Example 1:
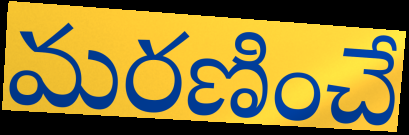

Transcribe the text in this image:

మరణించే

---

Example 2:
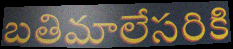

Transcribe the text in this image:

బతిమాలేసరికి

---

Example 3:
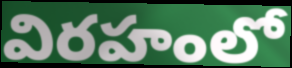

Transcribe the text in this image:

విరహంలో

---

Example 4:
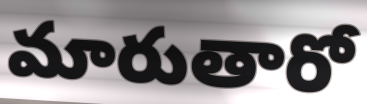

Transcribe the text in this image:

మారుతారో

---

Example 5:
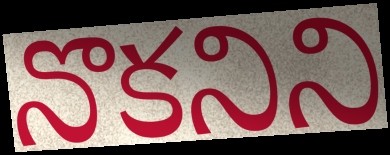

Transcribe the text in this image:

నొకనిని